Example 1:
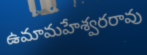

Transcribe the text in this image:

ఉమామహేశ్వరరావు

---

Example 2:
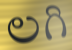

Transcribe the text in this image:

లగి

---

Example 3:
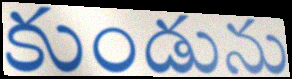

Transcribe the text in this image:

కుండును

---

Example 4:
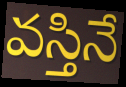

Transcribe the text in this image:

వస్తినే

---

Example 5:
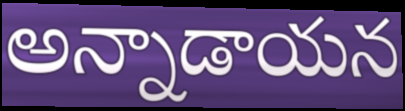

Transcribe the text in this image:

అన్నాడాయన